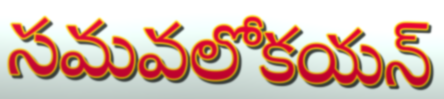
సమవలోకయన్